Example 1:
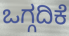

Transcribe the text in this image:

ಒಗ್ಗದಿಕೆ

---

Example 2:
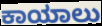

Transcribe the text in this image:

ಕಾಯಾಲು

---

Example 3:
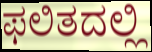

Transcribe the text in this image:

ಫಲಿತದಲ್ಲಿ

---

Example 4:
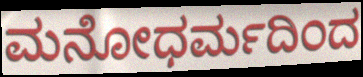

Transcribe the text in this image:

ಮನೋಧರ್ಮದಿಂದ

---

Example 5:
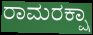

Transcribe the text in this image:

ರಾಮರಕ್ಷಾ